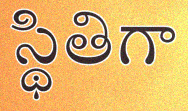
స్థితిగా